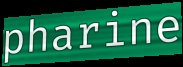
pharine